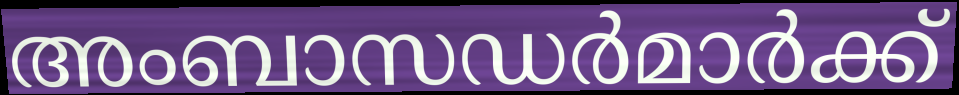
അംബാസഡർമാർക്ക്